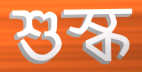
শুস্ক